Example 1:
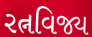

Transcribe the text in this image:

રત્નવિજ્ય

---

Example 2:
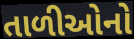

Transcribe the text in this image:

તાળીઓનો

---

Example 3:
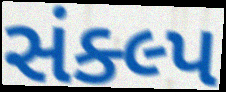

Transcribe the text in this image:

સંક્લ્પ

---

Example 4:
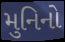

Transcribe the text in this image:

મુનિનો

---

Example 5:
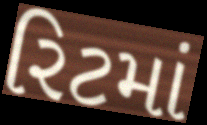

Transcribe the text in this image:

રિટમાં